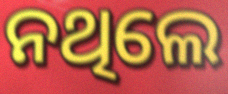
ନଥିଲେ